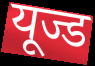
यूज्ड